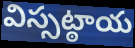
విస్సట్ఠాయ